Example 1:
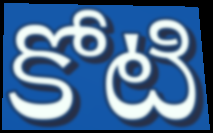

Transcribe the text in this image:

కోటి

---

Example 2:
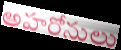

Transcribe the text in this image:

అహరోనులు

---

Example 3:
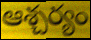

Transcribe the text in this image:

ఆశ్చర్యం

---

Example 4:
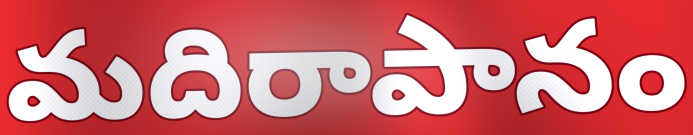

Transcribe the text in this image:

మదిరాపానం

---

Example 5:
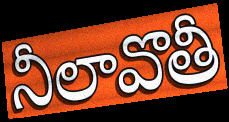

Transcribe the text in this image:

నీలావొతీ